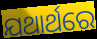
ଯଥାର୍ଥରେ